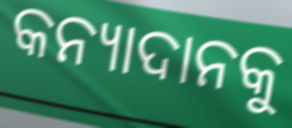
କନ୍ୟାଦାନକୁ